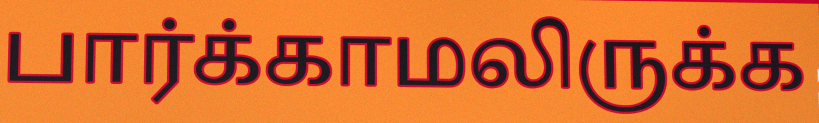
பார்க்காமலிருக்க